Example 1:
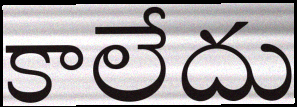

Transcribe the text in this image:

కాలేదు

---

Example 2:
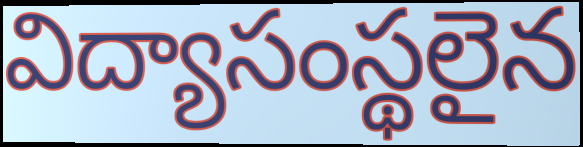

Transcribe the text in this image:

విద్యాసంస్థలైన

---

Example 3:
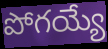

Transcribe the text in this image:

పోగయ్యే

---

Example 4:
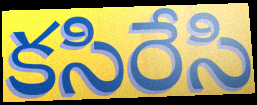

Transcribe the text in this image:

కసిరేసి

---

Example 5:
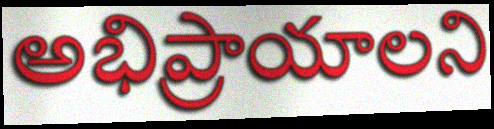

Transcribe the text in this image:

అభిప్రాయాలని